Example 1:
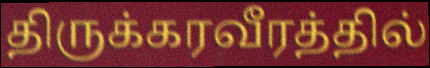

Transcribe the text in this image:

திருக்கரவீரத்தில்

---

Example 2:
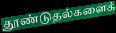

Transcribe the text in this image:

தூண்டுதல்களைக்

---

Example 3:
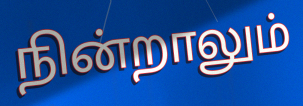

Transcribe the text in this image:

நின்றாலும்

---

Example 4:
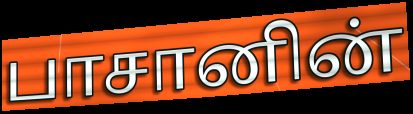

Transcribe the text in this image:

பாசானின்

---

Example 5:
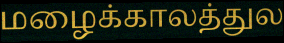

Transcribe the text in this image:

மழைக்காலத்துல